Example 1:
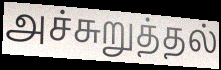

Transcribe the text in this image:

அச்சுறுத்தல்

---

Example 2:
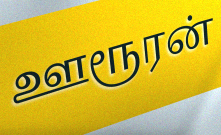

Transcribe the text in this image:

ஊரூரன்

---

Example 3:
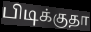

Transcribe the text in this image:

பிடிக்குதா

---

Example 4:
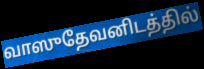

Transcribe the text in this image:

வாஸுதேவனிடத்தில்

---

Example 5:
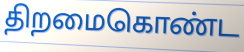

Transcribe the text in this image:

திறமைகொண்ட